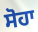
ਸੋਹਾ